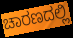
ಚಾರಣದಲ್ಲಿ